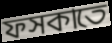
ফসকাতে